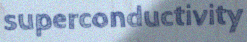
superconductivity